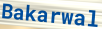
Bakarwal